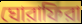
ঘোরাফিরা